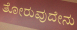
ತೋರುವುದೇನು